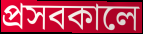
প্রসবকালে